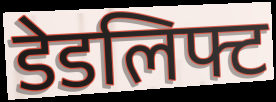
डेडलिफ्ट